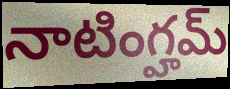
నాటింగ్హమ్